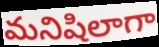
మనిషిలాగా